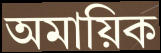
অমায়িক